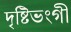
দৃষ্টিভংগী